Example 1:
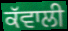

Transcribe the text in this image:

ਕੱਵਾਲੀ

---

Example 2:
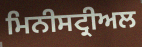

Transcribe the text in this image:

ਮਿਨੀਸਟ੍ਰੀਅਲ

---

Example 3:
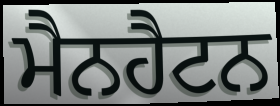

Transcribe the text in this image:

ਮੈਨਹੈਟਨ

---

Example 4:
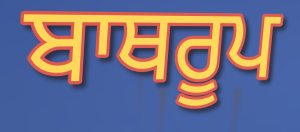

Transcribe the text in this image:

ਬਾਥਰੂਪ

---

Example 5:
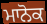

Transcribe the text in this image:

ਮਾਨੋਕ